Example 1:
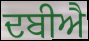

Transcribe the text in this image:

ਦਬੀਐ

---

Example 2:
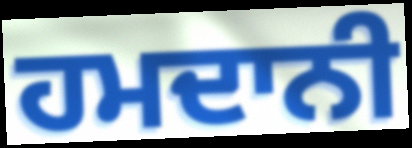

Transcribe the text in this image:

ਹਮਦਾਨੀ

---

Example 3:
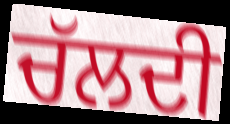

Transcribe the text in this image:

ਚੱਲਦੀ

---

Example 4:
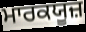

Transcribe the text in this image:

ਮਾਰਕਯੂਜ਼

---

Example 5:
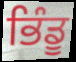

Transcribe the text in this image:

ਭਿੰਡੂ